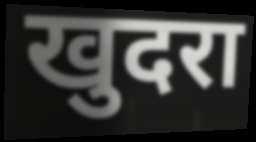
खुदरा